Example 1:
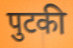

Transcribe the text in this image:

पुटकी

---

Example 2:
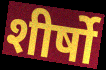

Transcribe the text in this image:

शीर्षो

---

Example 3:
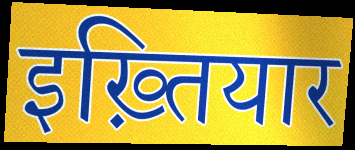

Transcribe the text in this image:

इख़्तियार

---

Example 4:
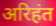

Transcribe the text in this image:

अरिहंत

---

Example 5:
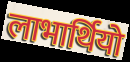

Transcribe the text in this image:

लाभार्थियो